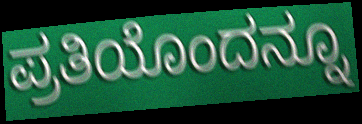
ಪ್ರತಿಯೊಂದನ್ನೂ